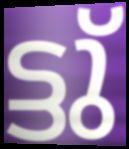
ട്ടു്